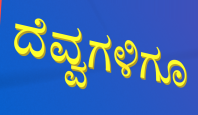
ದೆವ್ವಗಳಿಗೂ